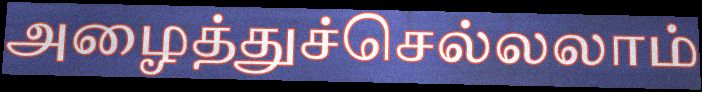
அழைத்துச்செல்லலாம்